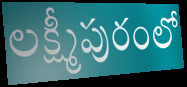
లక్ష్మీపురంలో